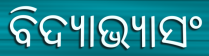
ବିଦ୍ୟାଭ୍ୟାସଂ